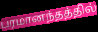
பரமானந்தத்தில்